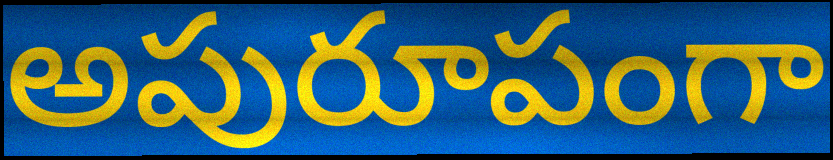
అపురూపంగా